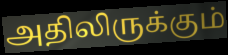
அதிலிருக்கும்